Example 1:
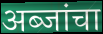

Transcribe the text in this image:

अब्जांचा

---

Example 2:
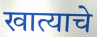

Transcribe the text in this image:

खात्याचे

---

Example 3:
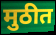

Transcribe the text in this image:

मुठीत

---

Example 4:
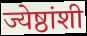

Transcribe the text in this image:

ज्येष्ठांशी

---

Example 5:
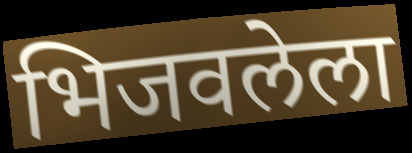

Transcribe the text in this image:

भिजवलेला